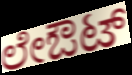
ಲೇಔಟ್